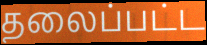
தலைப்பட்ட